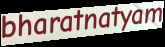
bharatnatyam